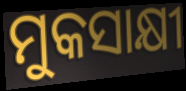
ମୁକସାକ୍ଷୀ